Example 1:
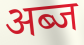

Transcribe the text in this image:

अब्ज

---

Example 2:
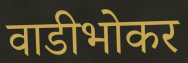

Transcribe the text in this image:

वाडीभोकर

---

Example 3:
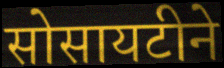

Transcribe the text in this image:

सोसायटीने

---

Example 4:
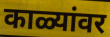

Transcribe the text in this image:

काळ्यांवर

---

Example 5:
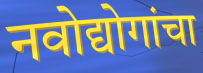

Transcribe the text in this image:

नवोद्योगांचा